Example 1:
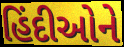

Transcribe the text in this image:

હિંદીઓને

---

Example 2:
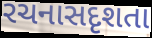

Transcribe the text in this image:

રચનાસદૃશતા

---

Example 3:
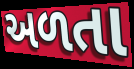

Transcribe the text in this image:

અળતા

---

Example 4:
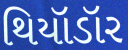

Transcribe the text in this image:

થિયૉડૉર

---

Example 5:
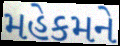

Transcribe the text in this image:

મહેકમને